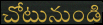
చోటునుండి